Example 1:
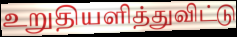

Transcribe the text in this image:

உறுதியளித்துவிட்டு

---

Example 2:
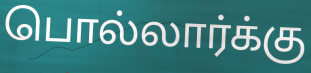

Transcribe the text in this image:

பொல்லார்க்கு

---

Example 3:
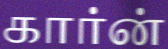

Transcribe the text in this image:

கார்ன்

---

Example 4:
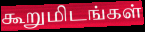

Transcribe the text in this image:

கூறுமிடங்கள்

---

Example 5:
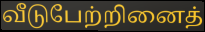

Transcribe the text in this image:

வீடுபேற்றினைத்